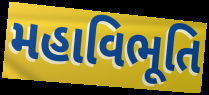
મહાવિભૂતિ